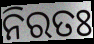
ନିରତଃ